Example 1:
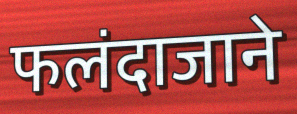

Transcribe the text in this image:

फलंदाजाने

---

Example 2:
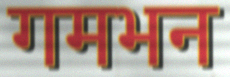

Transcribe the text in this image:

गमभन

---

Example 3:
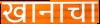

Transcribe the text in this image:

खानाचा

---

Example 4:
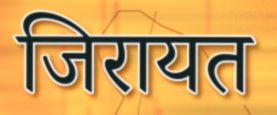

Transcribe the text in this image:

जिरायत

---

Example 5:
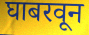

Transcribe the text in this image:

घाबरवून